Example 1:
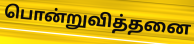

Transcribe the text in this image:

பொன்றுவித்தனை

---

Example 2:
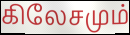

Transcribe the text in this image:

கிலேசமும்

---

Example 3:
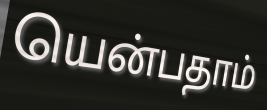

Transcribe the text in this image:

யென்பதாம்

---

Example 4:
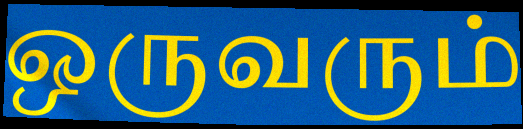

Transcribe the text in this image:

ஒருவரும்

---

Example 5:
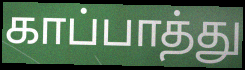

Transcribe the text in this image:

காப்பாத்து